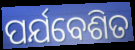
ପର୍ଯବେଶିତ